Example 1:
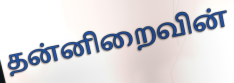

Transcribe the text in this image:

தன்னிறைவின்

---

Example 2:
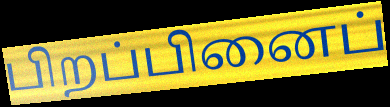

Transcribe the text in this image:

பிறப்பினைப்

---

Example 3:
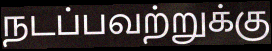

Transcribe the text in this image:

நடப்பவற்றுக்கு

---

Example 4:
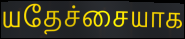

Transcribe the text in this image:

யதேச்சையாக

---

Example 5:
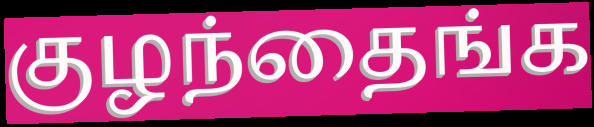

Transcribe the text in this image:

குழந்தைங்க